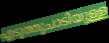
എടുത്തുചാടിയുള്ള